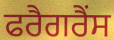
ਫਰੈਗਰੈਂਸ